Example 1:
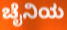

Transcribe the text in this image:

ಚೈನಿಯ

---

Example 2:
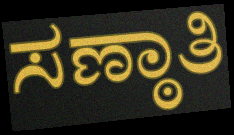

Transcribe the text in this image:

ಸಣ್ಠಾತಿ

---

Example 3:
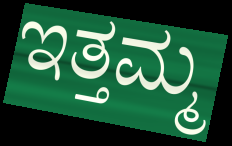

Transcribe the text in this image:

ಇತ್ತಮ್ಮ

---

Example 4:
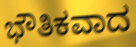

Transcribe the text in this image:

ಭೌತಿಕವಾದ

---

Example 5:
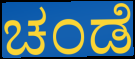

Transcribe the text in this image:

ಚಂಡೆ